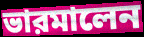
ভারমালেন